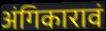
अंगिकारावं